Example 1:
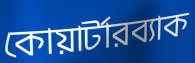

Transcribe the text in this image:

কোয়ার্টারব্যাক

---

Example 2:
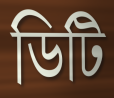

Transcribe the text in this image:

ডিটি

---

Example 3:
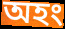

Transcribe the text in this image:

অহং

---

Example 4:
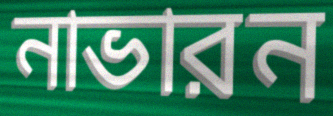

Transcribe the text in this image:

নাভারন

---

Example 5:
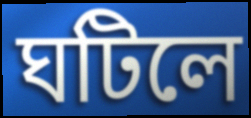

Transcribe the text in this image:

ঘটিলে